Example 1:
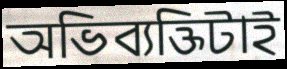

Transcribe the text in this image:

অভিব্যক্তিটাই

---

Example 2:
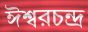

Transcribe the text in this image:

ঈশ্বরচন্দ্র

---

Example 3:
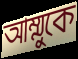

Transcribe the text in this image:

আম্মুকে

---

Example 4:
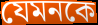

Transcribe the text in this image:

যেমনকে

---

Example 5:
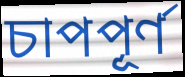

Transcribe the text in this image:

চাপপূর্ণ